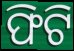
ଫିଟି